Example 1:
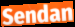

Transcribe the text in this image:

Sendan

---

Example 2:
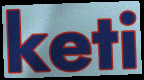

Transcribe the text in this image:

keti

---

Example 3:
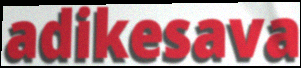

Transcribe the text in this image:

adikesava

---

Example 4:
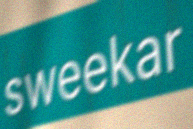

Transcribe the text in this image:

sweekar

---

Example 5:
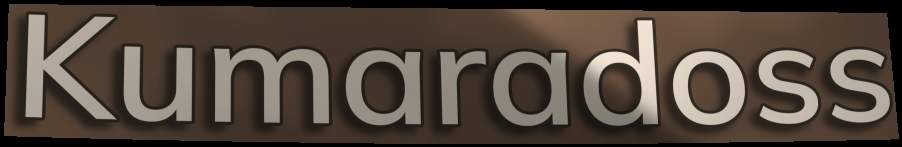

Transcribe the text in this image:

Kumaradoss